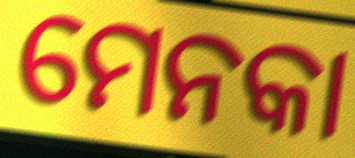
ମେନକା